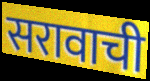
सरावाची